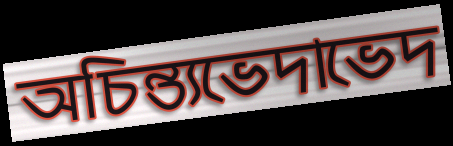
অচিন্ত্যভেদাভেদ